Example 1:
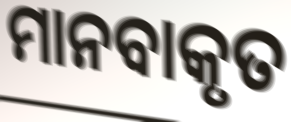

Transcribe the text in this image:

ମାନବାକୃତ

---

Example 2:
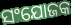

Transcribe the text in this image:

ସଂଯୋଜକ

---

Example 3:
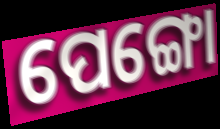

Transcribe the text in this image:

ପେଙ୍ଗୋ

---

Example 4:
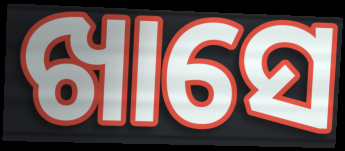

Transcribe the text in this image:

ଖାସେ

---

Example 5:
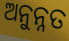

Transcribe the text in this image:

ଅନୁନ୍ନତ